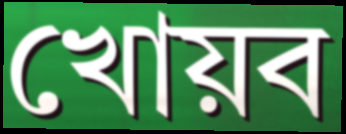
খোয়ব